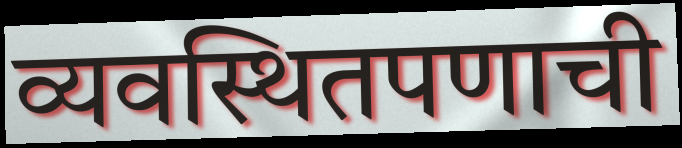
व्यवस्थितपणाची